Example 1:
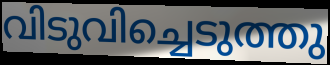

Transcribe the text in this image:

വിടുവിച്ചെടുത്തു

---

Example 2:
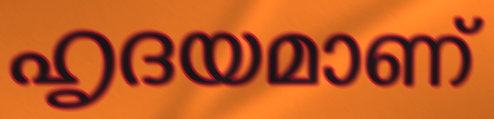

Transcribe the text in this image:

ഹൃദയമാണ്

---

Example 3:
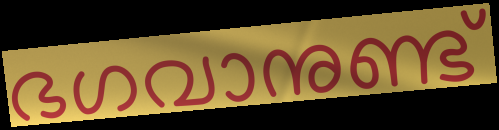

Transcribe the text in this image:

ഭഗവാനുണ്ട്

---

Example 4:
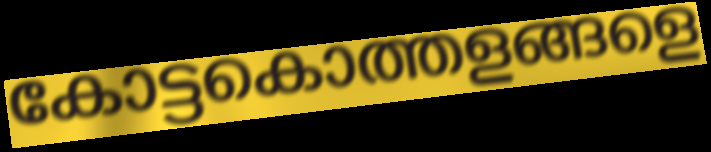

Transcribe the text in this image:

കോട്ടകൊത്തളങ്ങളെ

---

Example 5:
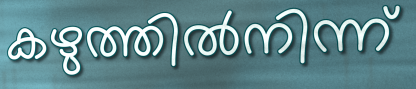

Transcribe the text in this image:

കഴുത്തിൽനിന്ന്